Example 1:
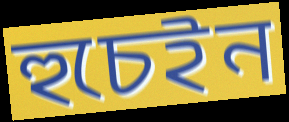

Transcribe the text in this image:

হুচেইন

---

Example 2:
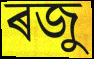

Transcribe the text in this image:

ৰজু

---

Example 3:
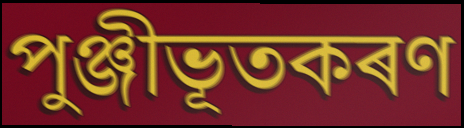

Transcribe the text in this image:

পুঞ্জীভূতকৰণ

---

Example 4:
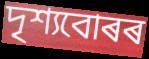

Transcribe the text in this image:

দৃশ্যবোৰৰ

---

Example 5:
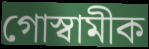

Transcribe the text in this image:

গোস্বামীক